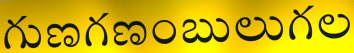
గుణగణంబులుగల